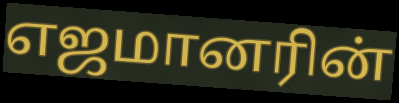
எஜமானரின்